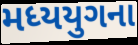
મધ્યયુગના